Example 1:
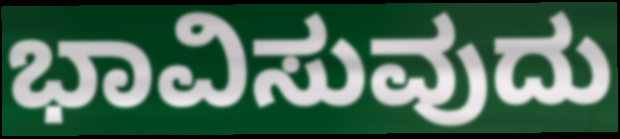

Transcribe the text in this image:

ಭಾವಿಸುವುದು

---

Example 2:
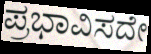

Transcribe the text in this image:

ಪ್ರಭಾವಿಸದೇ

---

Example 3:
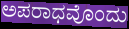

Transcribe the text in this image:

ಅಪರಾಧವೊಂದು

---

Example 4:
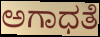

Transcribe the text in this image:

ಅಗಾಧತೆ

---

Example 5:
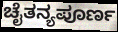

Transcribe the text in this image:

ಚೈತನ್ಯಪೂರ್ಣ